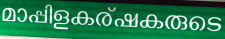
മാപ്പിളകര്ഷകരുടെ